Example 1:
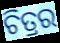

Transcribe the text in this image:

ଚିତ୍ରର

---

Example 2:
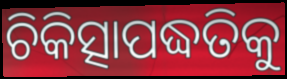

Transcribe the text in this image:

ଚିକିତ୍ସାପଦ୍ଧତିକୁ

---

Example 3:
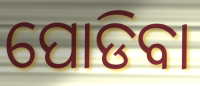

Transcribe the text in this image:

ପୋଡିବା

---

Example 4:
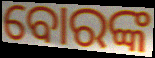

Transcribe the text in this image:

ବୋରଙ୍କ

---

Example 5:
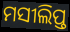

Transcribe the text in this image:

ମସୀଲିପ୍ତ